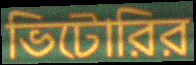
ভিটোরির